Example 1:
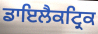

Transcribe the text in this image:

ਡਾਇਲੈਕਟ੍ਰਿਕ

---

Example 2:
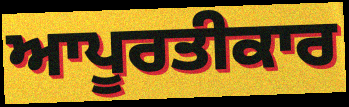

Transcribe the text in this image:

ਆਪੂਰਤੀਕਾਰ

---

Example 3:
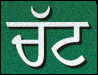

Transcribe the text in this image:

ਚੱਟ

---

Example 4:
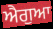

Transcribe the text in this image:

ਐਗੁਆ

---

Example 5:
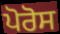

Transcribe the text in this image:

ਪੋਰੋਸ